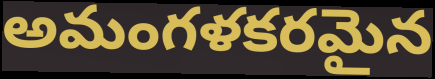
అమంగళకరమైన